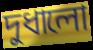
দুধালো